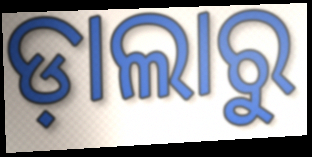
ଡ଼ାଲାରୁ